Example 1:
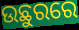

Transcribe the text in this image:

ଉଛୁରରେ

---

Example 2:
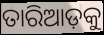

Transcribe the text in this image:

ତାରିଆଡ଼କୁ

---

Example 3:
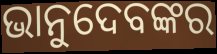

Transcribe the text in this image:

ଭାନୁଦେବଙ୍କର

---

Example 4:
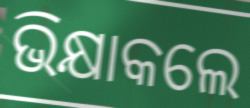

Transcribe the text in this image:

ଭିକ୍ଷାକଲେ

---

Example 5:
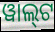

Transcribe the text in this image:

ୱାଲ୍‌ଟ